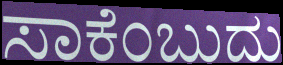
ಸಾಕೆಂಬುದು